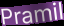
Pramil